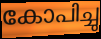
കോപിച്ചു